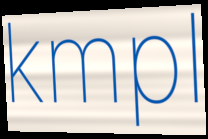
kmpl